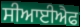
ਸੀਆਈਐਫ